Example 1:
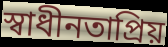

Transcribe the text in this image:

স্বাধীনতাপ্রিয়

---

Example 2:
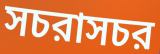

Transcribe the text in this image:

সচরাসচর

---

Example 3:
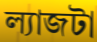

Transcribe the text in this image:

ল্যাজটা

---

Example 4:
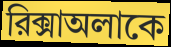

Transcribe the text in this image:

রিক্সাঅলাকে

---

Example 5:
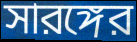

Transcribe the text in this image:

সারঙ্গের